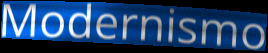
Modernismo